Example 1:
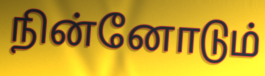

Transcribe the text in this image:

நின்னோடும்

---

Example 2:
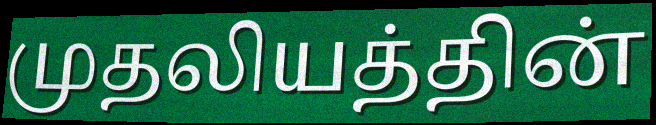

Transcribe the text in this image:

முதலியத்தின்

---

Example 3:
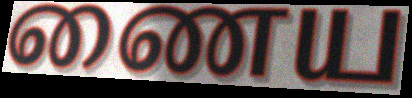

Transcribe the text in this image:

ணைய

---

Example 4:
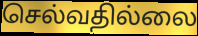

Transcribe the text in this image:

செல்வதில்லை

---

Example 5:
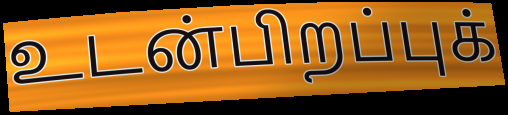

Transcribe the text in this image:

உடன்பிறப்புக்